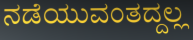
ನಡೆಯುವಂತದ್ದಲ್ಲ